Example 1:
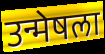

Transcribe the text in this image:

उन्मेषला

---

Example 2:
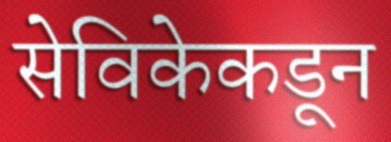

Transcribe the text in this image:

सेविकेकडून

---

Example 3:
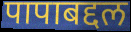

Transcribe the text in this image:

पापाबद्दल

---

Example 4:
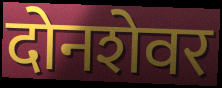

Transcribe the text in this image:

दोनशेवर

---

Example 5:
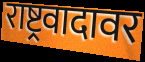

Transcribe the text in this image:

राष्ट्रवादावर